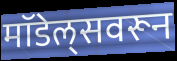
मॉडेल्सवरून